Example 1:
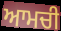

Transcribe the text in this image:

ਆਮਚੀ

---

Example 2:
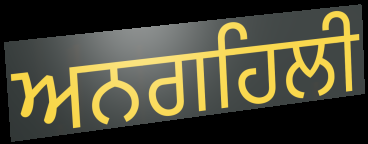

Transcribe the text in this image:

ਅਨਗਹਿਲੀ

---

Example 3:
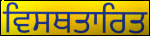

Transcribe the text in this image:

ਵਿਸਥਤਾਰਿਤ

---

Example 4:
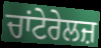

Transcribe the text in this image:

ਚਾਂਟੇਰੇਲਜ਼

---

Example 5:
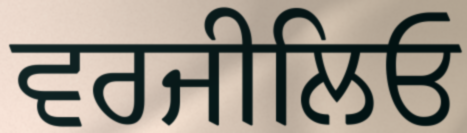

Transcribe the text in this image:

ਵਰਜੀਲਿਓ